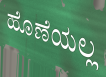
ಹೊಣೆಯಲ್ಲ